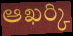
ఆఖర్కి